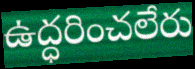
ఉద్ధరించలేరు